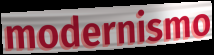
modernismo